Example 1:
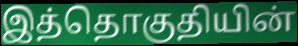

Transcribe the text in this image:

இத்தொகுதியின்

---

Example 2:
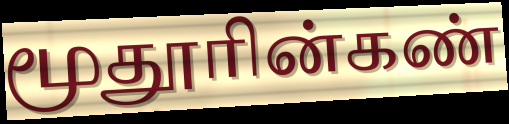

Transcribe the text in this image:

மூதூரின்கண்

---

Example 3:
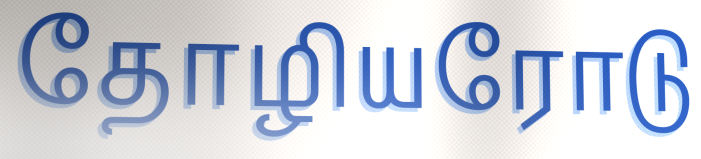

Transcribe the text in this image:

தோழியரோடு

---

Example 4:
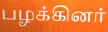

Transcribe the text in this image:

பழக்கினர்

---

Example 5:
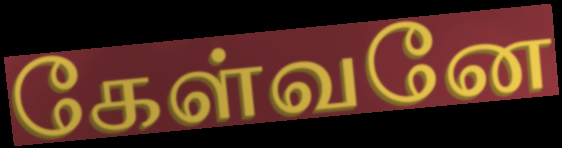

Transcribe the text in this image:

கேள்வனே